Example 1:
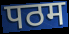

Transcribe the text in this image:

पठम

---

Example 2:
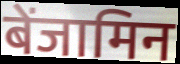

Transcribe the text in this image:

बेंजामिन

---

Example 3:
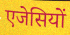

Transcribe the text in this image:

एजेसियों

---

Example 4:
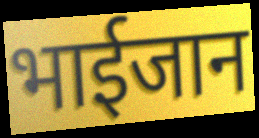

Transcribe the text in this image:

भाईजान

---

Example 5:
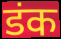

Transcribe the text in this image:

डंक